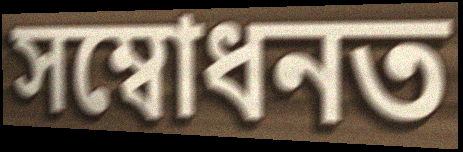
সম্বোধনত